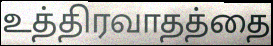
உத்திரவாதத்தை